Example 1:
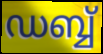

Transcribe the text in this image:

ഡബ്ബ്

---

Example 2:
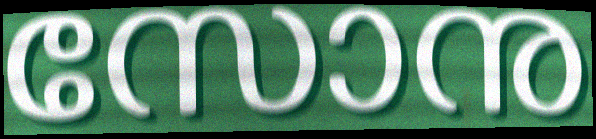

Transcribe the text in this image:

സോനു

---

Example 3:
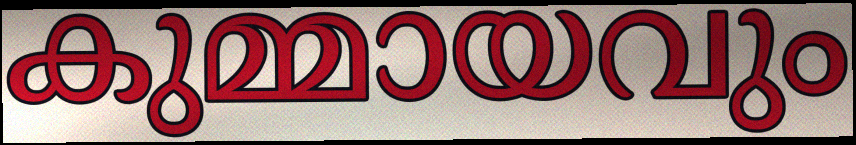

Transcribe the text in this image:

കുമ്മായവും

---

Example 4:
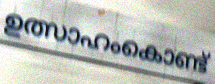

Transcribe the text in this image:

ഉത്സാഹംകൊണ്ട്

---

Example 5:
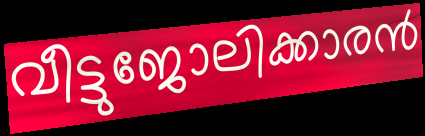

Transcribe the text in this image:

വീട്ടുജോലിക്കാരൻ